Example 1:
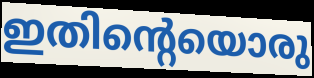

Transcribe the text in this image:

ഇതിന്റെയൊരു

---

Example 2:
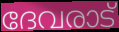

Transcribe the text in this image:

ദേവരാട്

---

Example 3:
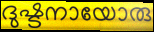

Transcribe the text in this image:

ദുഷ്ടനായോരു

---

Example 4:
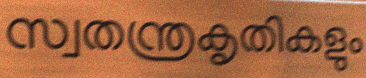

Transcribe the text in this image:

സ്വതന്ത്രകൃതികളും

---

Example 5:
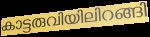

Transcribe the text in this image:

കാട്ടരുവിയിലിറങ്ങി